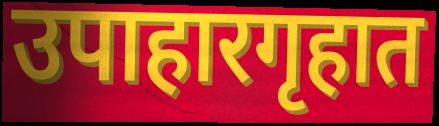
उपाहारगृहात